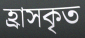
হ্রাসকৃত